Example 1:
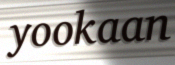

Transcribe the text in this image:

yookaan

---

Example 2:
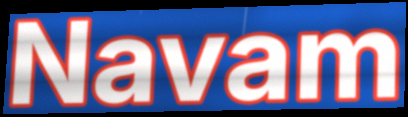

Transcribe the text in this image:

Navam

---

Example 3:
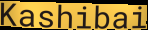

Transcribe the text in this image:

Kashibai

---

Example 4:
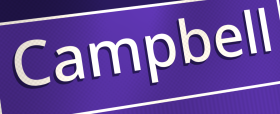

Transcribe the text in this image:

Campbell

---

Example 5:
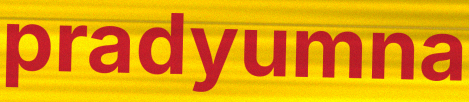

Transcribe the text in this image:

pradyumna